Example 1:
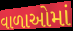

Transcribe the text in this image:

વાળાઓમાં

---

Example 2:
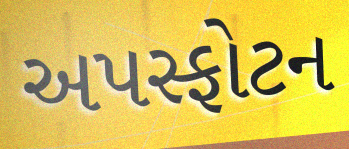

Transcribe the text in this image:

અપસ્ફોટન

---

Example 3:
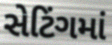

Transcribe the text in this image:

સેટિંગમાં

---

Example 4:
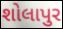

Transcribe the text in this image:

શોલાપુર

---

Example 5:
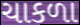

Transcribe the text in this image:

ચાકળા